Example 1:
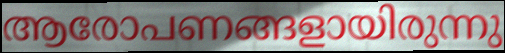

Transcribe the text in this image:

ആരോപണങ്ങളായിരുന്നു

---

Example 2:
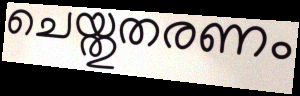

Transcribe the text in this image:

ചെയ്തുതരണം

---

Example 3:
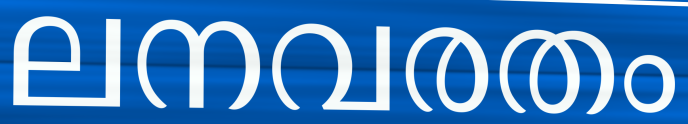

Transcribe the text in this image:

ലനവരതം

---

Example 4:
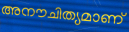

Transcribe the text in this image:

അനൗചിത്യമാണ്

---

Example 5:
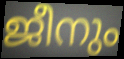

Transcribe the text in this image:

ജീനും